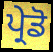
ਪ੍ਰੇਡੋ